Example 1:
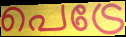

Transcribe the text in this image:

പെട്രേ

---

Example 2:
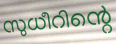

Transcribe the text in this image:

സുധീറിന്റെ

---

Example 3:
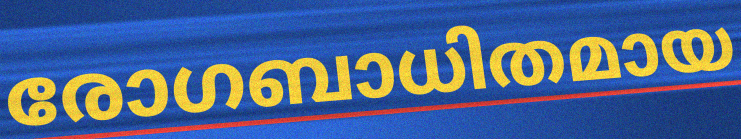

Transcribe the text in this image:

രോഗബാധിതമായ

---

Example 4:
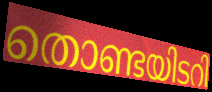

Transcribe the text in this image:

തൊണ്ടയിടറി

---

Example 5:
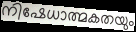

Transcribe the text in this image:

നിഷേധാത്മകതയും